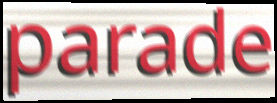
parade